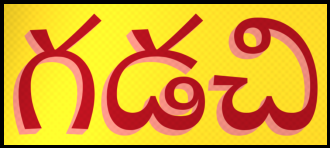
గడచి